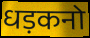
धड़कनो